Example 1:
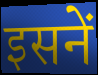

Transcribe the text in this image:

इसनें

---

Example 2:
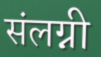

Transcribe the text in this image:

संलग्नी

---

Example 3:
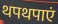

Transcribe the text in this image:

थपथपाएं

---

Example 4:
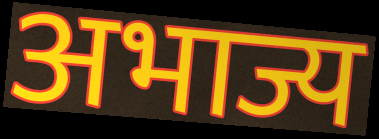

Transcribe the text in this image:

अभाज्य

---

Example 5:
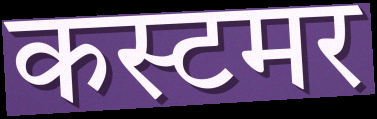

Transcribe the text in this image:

कस्‍टमर